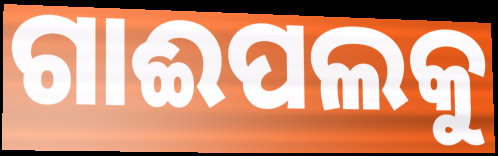
ଗାଈପଲକୁ